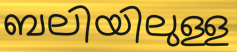
ബലിയിലുള്ള